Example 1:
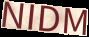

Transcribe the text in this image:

NIDM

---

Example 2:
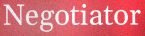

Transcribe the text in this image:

Negotiator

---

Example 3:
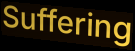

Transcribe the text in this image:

Suffering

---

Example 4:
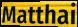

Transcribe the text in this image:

Matthai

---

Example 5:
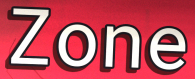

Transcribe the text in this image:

Zone